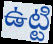
ఉట్టి